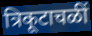
त्रिकूटाचळीं